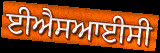
ਈਐਸਆਈਸੀ